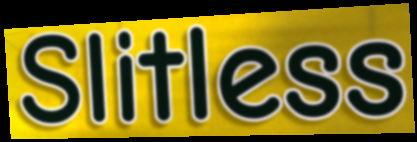
Slitless